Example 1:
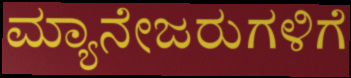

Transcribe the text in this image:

ಮ್ಯಾನೇಜರುಗಳಿಗೆ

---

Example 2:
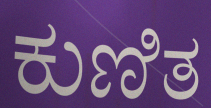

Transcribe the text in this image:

ಕುಣಿತ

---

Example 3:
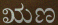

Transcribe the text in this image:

ಋಣ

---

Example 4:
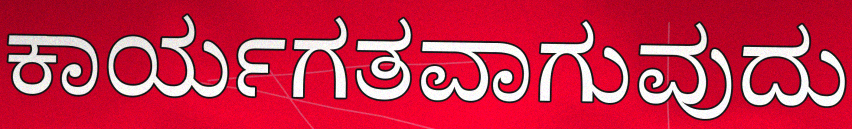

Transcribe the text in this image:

ಕಾರ್ಯಗತವಾಗುವುದು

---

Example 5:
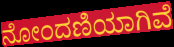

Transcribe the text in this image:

ನೋಂದಣಿಯಾಗಿವೆ